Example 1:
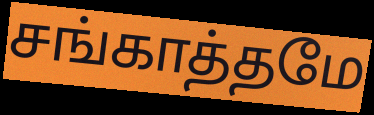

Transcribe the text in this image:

சங்காத்தமே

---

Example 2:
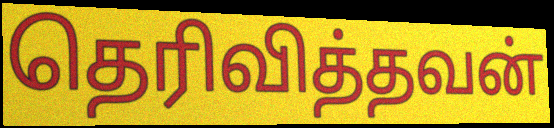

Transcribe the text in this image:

தெரிவித்தவன்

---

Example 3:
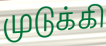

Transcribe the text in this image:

முடுக்கி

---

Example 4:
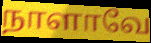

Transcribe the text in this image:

நாளாவே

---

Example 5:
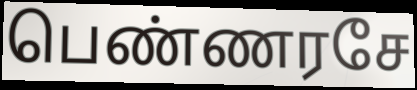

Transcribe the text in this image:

பெண்ணரசே